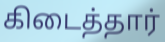
கிடைத்தார்